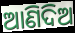
ଆଣିଦିଅ